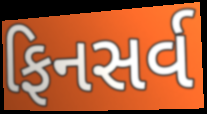
ફિનસર્વ